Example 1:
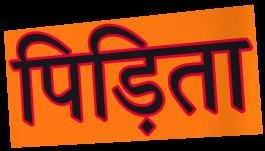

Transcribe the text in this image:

पिड़िता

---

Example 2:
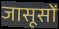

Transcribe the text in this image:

जासूसों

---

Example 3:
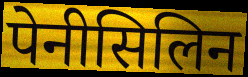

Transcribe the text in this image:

पेनीसिलिन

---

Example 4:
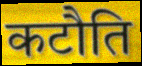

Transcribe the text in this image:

कटौति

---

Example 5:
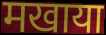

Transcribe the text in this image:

मखाया